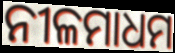
ନୀଳମାଧମ